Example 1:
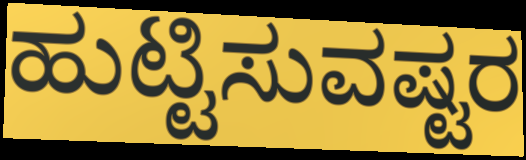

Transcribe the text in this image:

ಹುಟ್ಟಿಸುವಷ್ಟರ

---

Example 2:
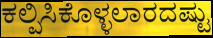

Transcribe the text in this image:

ಕಲ್ಪಿಸಿಕೊಳ್ಳಲಾರದಷ್ಟು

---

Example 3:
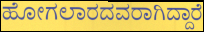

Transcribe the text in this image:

ಹೋಗಲಾರದವರಾಗಿದ್ದಾರೆ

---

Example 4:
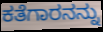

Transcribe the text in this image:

ಕತೆಗಾರನನ್ನು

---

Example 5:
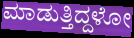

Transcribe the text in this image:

ಮಾಡುತ್ತಿದ್ದಳೋ